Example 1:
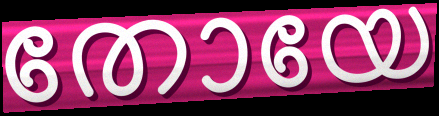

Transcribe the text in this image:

തോയേ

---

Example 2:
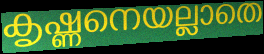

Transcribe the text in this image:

കൃഷ്ണനെയല്ലാതെ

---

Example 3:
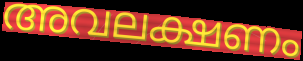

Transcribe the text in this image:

അവലക്ഷണം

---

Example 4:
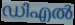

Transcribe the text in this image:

ഡിഎൽ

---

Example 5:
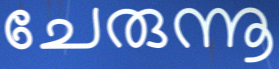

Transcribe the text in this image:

ചേരുന്നൂ